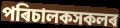
পৰিচালকসকলৰ